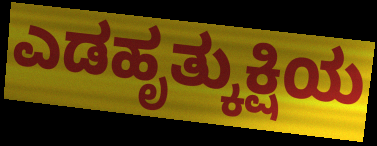
ಎಡಹೃತ್ಕುಕ್ಷಿಯ